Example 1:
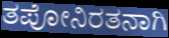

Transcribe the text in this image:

ತಪೋನಿರತನಾಗಿ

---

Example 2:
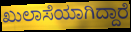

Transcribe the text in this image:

ಖುಲಾಸೆಯಾಗಿದ್ದಾರೆ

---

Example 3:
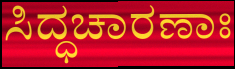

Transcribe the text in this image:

ಸಿದ್ಧಚಾರಣಾಃ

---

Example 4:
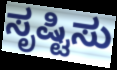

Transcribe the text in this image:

ಸೃಷ್ಟಿಸು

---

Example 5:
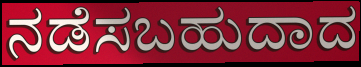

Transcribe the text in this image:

ನಡೆಸಬಹುದಾದ